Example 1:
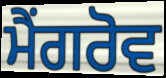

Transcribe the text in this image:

ਮੈਂਗਰੋਵ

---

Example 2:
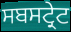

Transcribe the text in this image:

ਸਬਸਟ੍ਰੇਟ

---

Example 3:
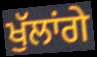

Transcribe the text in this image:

ਖੁੱਲਾਂਗੇ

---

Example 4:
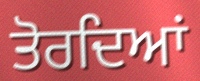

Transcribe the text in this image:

ਤੋਰਦਿਆਂ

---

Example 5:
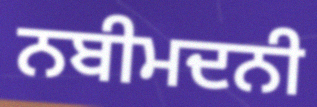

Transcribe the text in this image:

ਨਬੀਮਦਨੀ